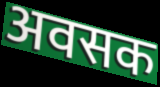
अवसक